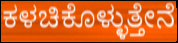
ಕಳಚಿಕೊಳ್ಳುತ್ತೇನೆ